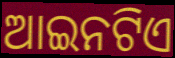
ଆଇନଟିଏ